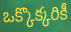
ఒక్కొక్కరికీ